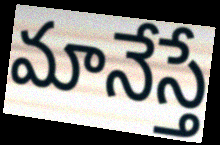
మానేస్తే